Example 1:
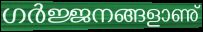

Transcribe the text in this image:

ഗർജ്ജനങ്ങളാണു്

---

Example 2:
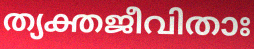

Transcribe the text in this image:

ത്യക്തജീവിതാഃ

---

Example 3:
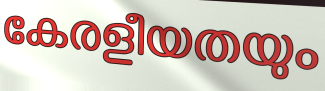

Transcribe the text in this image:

കേരളീയതയും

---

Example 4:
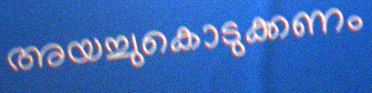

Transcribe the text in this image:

അയച്ചുകൊടുക്കണം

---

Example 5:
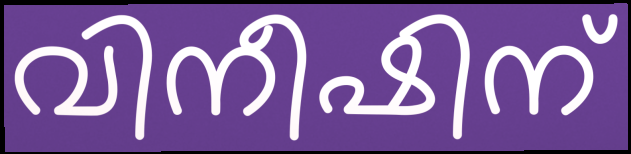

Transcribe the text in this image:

വിനീഷിന്